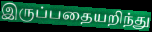
இருப்பதையறிந்து